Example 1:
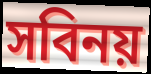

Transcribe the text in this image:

সবিনয়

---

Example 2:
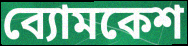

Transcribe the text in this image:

ব্যোমকেশ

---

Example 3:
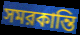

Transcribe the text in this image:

সমরকান্তি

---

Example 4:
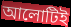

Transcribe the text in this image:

আলোটিই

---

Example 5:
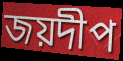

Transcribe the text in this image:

জয়দীপ